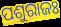
ପଶୁରାଜଃ